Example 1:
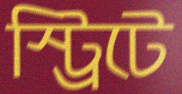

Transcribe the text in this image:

স্ট্রিটে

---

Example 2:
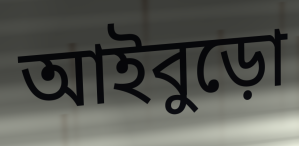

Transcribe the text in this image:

আইবুড়ো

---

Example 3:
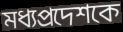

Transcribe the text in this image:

মধ্যপ্রদেশকে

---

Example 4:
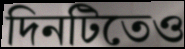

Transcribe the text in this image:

দিনটিতেও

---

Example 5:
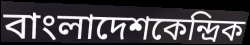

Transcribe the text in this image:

বাংলাদেশকেন্দ্রিক